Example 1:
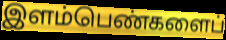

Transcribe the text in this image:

இளம்பெண்களைப்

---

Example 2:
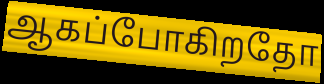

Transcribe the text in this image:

ஆகப்போகிறதோ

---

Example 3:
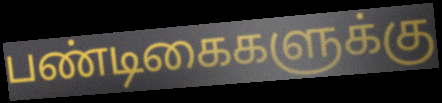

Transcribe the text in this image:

பண்டிகைகளுக்கு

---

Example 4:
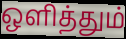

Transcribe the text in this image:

ஒளித்தும்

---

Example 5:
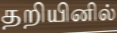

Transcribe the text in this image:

தறியினில்